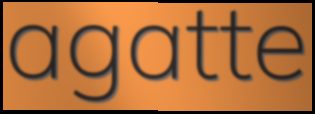
agatte